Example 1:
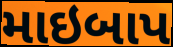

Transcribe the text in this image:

માઇબાપ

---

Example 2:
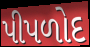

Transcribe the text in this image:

પીપળોદ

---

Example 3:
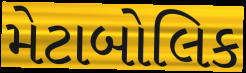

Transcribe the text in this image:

મેટાબોલિક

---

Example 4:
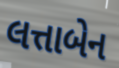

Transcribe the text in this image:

લત્તાબેન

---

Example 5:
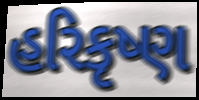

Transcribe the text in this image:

હરિકૃષ્ણ